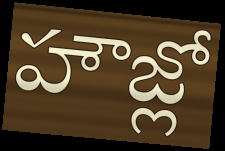
హౌజ్లో